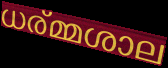
ധര്മ്മശാല